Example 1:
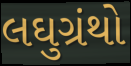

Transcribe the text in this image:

લઘુગ્રંથો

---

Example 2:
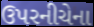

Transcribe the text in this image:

ઉપરનીચેના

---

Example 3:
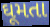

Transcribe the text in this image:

ઘૂમતા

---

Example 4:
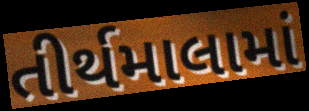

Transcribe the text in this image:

તીર્થમાલામાં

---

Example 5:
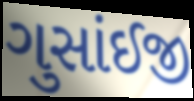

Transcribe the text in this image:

ગુસાંઈજી